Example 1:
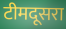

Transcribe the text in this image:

टीमदूसरा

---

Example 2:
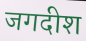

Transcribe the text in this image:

जगदीश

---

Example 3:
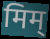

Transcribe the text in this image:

मिम्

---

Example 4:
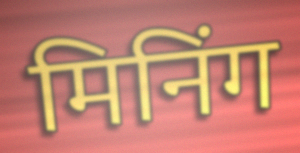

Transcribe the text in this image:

मिनिंग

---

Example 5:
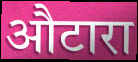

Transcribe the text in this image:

औटारा